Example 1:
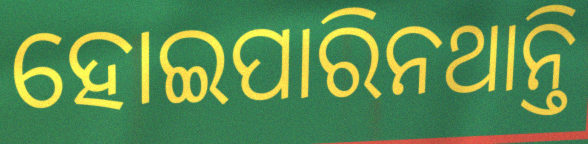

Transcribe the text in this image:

ହୋଇପାରିନଥାନ୍ତି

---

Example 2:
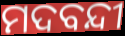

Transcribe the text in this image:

ମଦବନ୍ଦୀ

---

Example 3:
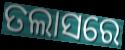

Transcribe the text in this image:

ତଲାସରେ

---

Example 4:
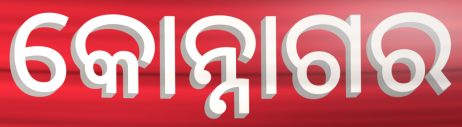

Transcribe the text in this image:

କୋନ୍ନାଗର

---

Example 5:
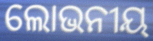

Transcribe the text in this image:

ଲୋଭନୀୟ